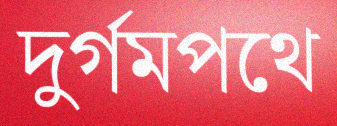
দুর্গমপথে